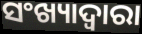
ସଂଖ୍ୟାଦ୍ଵାରା